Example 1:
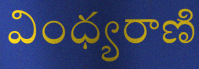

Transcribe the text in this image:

వింధ్యరాణి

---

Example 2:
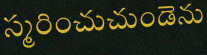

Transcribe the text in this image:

స్మరించుచుండెను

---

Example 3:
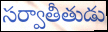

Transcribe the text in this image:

సర్వాతీతుడు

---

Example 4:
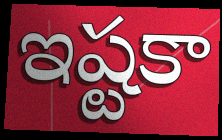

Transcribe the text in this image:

ఇష్టకా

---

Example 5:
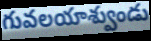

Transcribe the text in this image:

గువలయాశ్వుండు